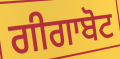
ਗੀਗਾਬੋਟ